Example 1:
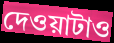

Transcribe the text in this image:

দেওয়াটাও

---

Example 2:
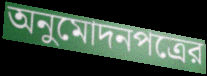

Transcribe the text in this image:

অনুমোদনপত্রের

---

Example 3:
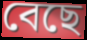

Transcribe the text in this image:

বেছে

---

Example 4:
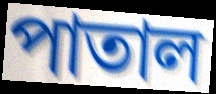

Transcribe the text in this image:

পাতাল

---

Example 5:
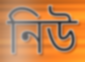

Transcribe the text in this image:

নিউ